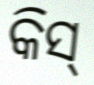
କିସ୍